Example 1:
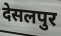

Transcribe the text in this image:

देसलपुर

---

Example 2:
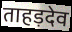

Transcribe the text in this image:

ताहड़देव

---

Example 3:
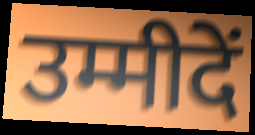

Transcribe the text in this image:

उम्‍मीदें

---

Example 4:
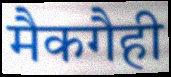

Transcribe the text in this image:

मैकगैही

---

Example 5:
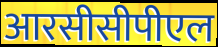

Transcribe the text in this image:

आरसीसीपीएल